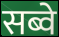
सब्वे